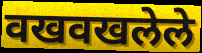
वखवखलेले